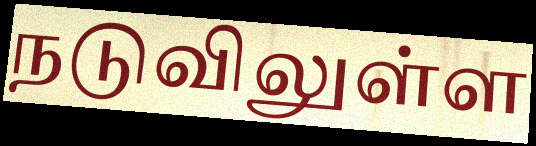
நடுவிலுள்ள